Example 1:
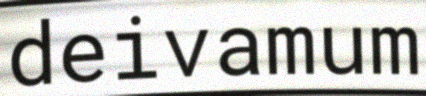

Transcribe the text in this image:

deivamum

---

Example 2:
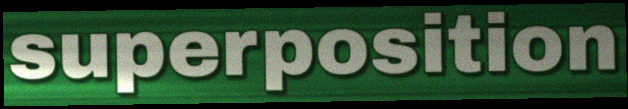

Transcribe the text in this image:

superposition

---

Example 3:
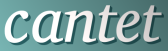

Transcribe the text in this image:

cantet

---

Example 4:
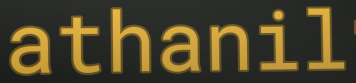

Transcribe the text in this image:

athanil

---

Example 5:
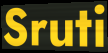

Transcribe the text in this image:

Sruti